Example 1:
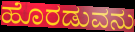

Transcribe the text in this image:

ಹೊರಡುವನು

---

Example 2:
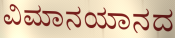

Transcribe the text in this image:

ವಿಮಾನಯಾನದ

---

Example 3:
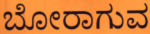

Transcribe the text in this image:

ಬೋರಾಗುವ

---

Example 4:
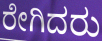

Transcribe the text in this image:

ರೇಗಿದರು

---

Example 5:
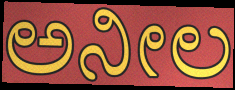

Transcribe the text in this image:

ಅನೀಲ